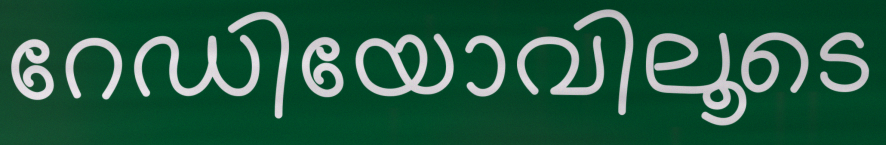
റേഡിയോവിലൂടെ